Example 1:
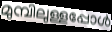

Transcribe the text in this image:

മുമ്പിലുള്ളപ്പോൾ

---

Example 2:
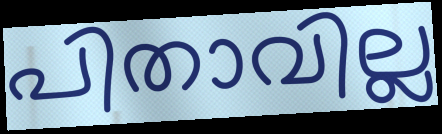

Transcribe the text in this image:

പിതാവില്ല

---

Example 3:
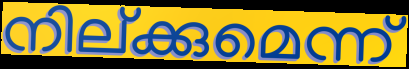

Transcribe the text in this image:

നില്ക്കുമെന്ന്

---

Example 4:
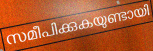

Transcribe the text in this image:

സമീപിക്കുകയുണ്ടായി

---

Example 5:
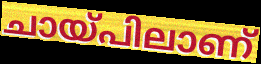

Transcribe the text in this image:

ചായ്പിലാണ്